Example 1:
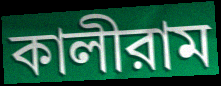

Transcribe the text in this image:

কালীরাম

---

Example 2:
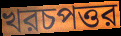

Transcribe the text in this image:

খরচপত্তর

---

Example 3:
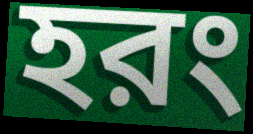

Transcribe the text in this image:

হরং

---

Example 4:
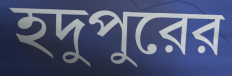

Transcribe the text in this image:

হদুপুরের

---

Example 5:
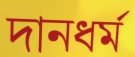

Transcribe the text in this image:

দানধর্ম